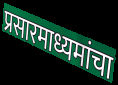
प्रसारमाध्यमांचा